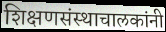
शिक्षणसंस्थाचालकांनी